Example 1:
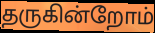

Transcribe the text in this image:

தருகின்றோம்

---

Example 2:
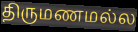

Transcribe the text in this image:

திருமணமல்ல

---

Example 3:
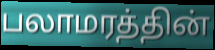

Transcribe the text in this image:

பலாமரத்தின்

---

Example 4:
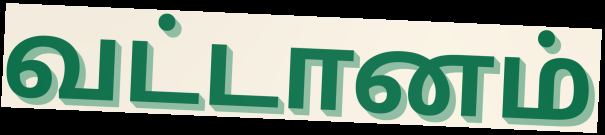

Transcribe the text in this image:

வட்டானம்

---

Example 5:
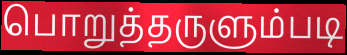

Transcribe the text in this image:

பொறுத்தருளும்படி